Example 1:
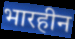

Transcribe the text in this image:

भारहीन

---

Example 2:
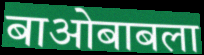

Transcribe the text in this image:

बाओबाबला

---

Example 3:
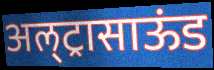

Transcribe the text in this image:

अल्ट्रासाऊंड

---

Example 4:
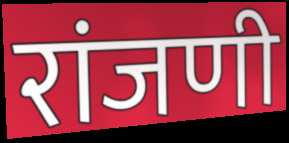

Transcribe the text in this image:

रांजणी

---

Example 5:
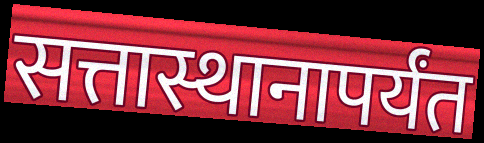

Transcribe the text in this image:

सत्तास्थानापर्यंत